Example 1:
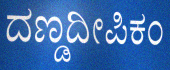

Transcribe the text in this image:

ದಣ್ಡದೀಪಿಕಂ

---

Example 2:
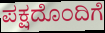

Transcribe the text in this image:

ಪಕ್ಷದೊಂದಿಗೆ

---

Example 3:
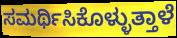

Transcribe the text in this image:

ಸಮರ್ಥಿಸಿಕೊಳ್ಳುತ್ತಾಳೆ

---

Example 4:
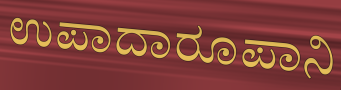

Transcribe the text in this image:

ಉಪಾದಾರೂಪಾನಿ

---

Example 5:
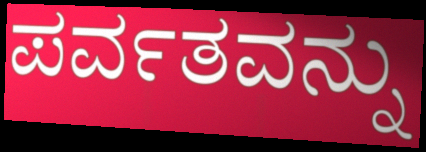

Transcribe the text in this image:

ಪರ್ವತವನ್ನು